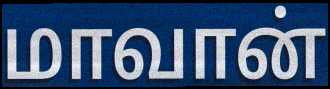
மாவான்